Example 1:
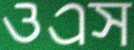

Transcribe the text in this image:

ওএস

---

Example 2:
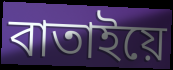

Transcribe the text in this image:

বাতাইয়ে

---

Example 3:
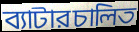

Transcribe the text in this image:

ব্যাটারচালিত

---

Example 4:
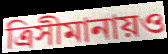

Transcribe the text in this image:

ত্রিসীমানায়ও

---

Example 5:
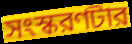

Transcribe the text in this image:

সংস্করণটার